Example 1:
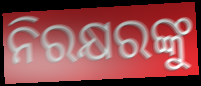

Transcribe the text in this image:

ନିରକ୍ଷରଙ୍କୁ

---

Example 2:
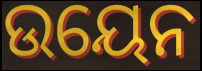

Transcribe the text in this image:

ଉୟେନ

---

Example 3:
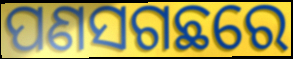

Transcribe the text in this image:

ପଣସଗଛରେ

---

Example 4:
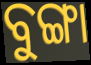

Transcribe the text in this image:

ବୁଙ୍ଗା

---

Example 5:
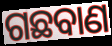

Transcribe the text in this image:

ଗଛବାଣ